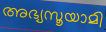
അഭ്യസൂയാമി